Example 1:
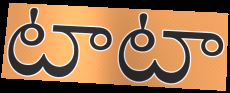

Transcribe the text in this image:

టాటా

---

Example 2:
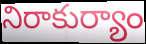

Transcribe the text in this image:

నిరాకుర్యాం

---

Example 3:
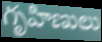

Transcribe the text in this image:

గృహిణులు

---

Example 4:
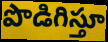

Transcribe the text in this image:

పొడిగిస్తూ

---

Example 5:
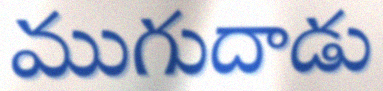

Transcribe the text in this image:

ముగుదాడు